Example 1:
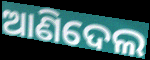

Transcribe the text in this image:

ଆଣିଦେଲ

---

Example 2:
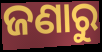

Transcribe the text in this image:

ଜଣାରୁ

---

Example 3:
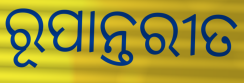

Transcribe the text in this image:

ରୂପାନ୍ତରୀତ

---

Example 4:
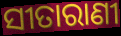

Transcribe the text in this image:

ସୀତାରାଣୀ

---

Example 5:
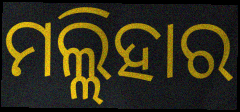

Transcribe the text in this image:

ମଲ୍ଲିହାର